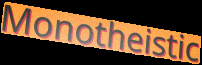
Monotheistic